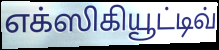
எக்ஸிகியூட்டிவ்